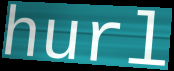
hurl